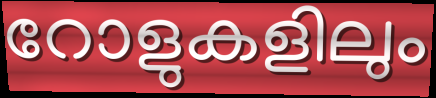
റോളുകളിലും